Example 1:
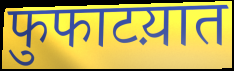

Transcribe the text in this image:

फुफाटय़ात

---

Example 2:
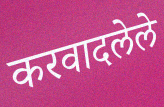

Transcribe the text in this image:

करवादलेले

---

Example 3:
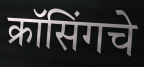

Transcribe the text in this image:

क्रॉसिंगचे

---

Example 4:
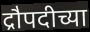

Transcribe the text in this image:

द्रौपदीच्या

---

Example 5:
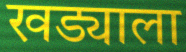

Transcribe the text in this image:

खड्याला